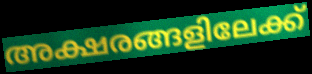
അക്ഷരങ്ങളിലേക്ക്